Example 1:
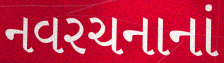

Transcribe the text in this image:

નવરચનાનાં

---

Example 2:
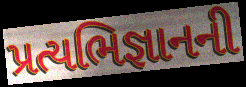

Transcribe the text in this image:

પ્રત્યભિજ્ઞાનની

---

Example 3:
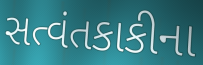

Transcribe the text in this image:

સત્વંતકાકીના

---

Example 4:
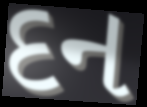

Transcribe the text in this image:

દન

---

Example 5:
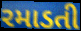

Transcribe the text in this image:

રમાડતી